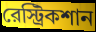
রেস্ট্রিকশান